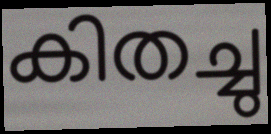
കിതച്ചു